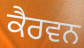
ਕੈਰਵਨ